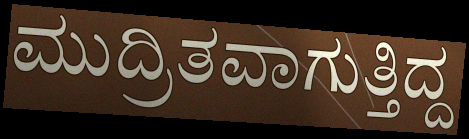
ಮುದ್ರಿತವಾಗುತ್ತಿದ್ದ